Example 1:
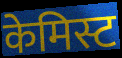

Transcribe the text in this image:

केमिस्ट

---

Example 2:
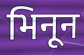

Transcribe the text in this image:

भिनून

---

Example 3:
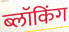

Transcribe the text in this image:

ब्लॉकिंग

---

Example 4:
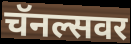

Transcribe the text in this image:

चॅनल्सवर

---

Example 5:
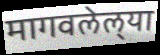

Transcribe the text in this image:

मागवलेल्या